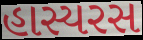
હાસ્યરસ